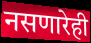
नसणारेही